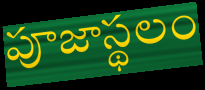
పూజాస్థలం